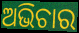
ଅଭିଚାର